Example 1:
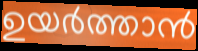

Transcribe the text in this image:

ഉയർത്താൻ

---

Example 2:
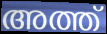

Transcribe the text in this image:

അത്ത്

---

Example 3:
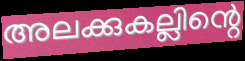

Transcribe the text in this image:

അലക്കുകല്ലിന്റെ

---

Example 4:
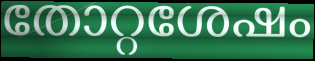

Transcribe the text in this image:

തോറ്റശേഷം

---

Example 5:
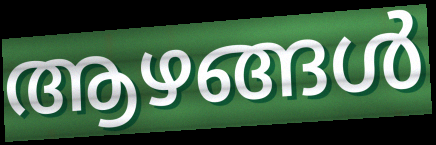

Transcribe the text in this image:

ആഴങ്ങൾ